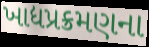
ખાદ્યપ્રક્રમણના